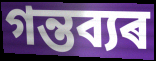
গন্তব্যৰ